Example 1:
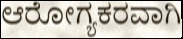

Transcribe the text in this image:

ಆರೋಗ್ಯಕರವಾಗಿ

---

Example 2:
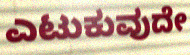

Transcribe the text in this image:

ಎಟುಕುವುದೇ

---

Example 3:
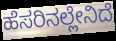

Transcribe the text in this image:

ಹೆಸರಿನಲ್ಲೇನಿದೆ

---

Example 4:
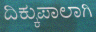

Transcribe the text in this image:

ದಿಕ್ಕುಪಾಲಾಗಿ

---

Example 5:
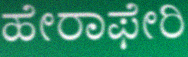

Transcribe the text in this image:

ಹೇರಾಫೇರಿ